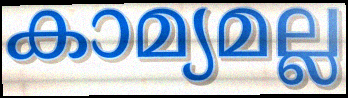
കാമ്യമല്ല